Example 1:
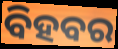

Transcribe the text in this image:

ବିହବର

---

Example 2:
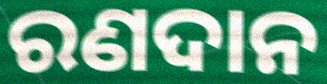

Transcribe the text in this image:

ରଣଦାନ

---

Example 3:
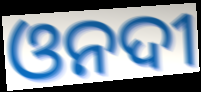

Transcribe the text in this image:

ଓନଦୀ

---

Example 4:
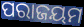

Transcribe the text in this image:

ପରାଜୟମ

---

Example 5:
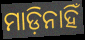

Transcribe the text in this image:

ମାଡ଼ିନାହିଁ